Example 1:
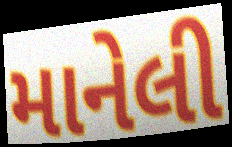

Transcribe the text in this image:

માનેલી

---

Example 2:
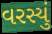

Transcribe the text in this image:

વરસ્યું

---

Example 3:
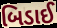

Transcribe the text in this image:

બિડાઈ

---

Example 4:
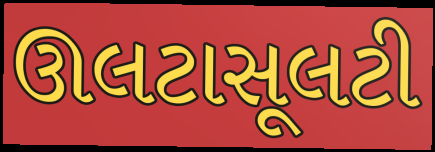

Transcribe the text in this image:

ઊલટાસૂલટી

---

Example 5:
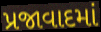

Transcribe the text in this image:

પ્રજાવાદમાં